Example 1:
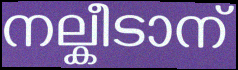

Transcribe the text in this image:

നല്കീടാന്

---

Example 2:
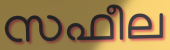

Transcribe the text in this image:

സഫീല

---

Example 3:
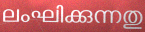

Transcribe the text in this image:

ലംഘിക്കുന്നതു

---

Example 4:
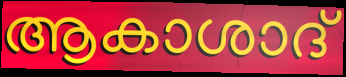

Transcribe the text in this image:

ആകാശാദ്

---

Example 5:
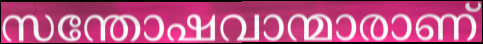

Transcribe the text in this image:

സന്തോഷവാന്മാരാണ്